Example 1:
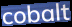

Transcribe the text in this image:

cobalt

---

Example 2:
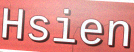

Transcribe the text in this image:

Hsien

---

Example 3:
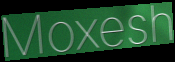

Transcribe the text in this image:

Moxesh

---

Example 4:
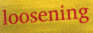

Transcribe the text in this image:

loosening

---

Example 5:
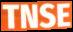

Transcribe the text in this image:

TNSE